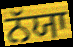
ਨੱਯਾ